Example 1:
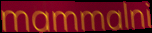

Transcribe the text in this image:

mammalni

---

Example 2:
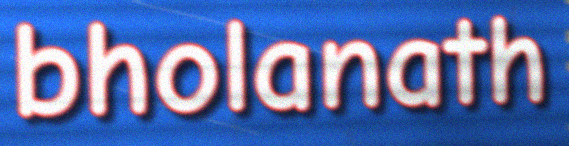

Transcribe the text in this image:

bholanath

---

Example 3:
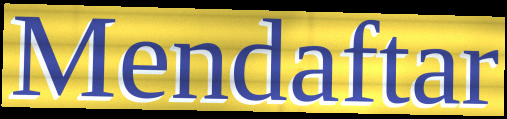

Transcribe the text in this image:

Mendaftar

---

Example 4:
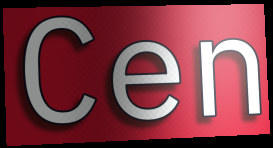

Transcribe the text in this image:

Cen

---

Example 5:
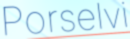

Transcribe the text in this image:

Porselvi